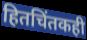
हितचिंतकही